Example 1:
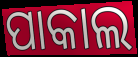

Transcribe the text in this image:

ପାକାଲ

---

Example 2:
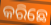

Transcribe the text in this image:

କରିଛେ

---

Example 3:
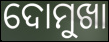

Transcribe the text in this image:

ଦୋମୁଖା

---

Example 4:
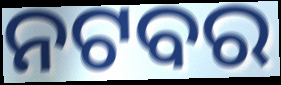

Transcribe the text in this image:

ନଟବର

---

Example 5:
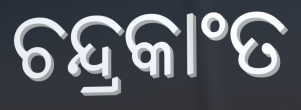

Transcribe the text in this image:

ଚନ୍ଦ୍ରକାଂତ